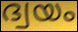
ദ്വയം